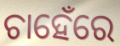
ଚାହେଁରେ